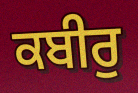
ਕਬੀਰੁ